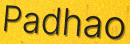
Padhao